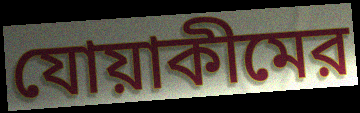
যোয়াকীমের